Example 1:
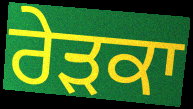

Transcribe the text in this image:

ਰੇੜਕਾ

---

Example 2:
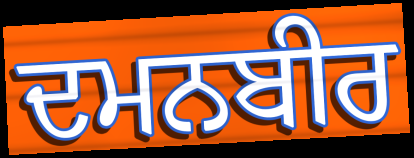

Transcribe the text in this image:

ਦਮਨਬੀਰ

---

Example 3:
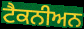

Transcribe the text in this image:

ਟੈਕਨੀਅਨ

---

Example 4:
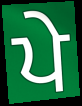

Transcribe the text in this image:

ਪੇ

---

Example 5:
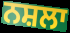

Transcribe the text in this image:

ਨਸ਼ਲਾ